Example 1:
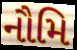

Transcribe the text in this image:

નૌમિ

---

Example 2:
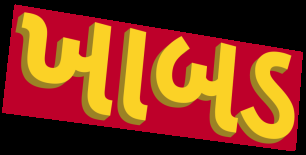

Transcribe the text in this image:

ખાબડ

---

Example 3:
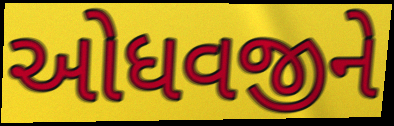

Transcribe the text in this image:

ઓધવજીને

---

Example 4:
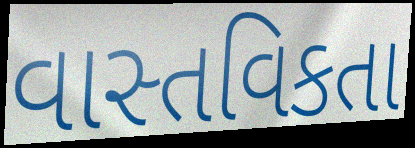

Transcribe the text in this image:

વાસ્તવિકતા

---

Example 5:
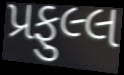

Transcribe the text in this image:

પ્રફુલ્લ